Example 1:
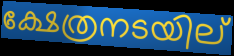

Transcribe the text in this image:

ക്ഷേത്രനടയില്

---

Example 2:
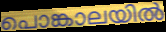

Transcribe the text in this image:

പൊങ്കാലയിൽ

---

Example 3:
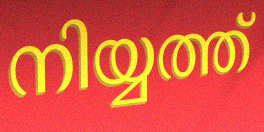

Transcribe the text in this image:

നിയ്യത്ത്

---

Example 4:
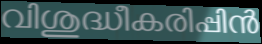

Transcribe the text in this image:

വിശുദ്ധീകരിപ്പിൻ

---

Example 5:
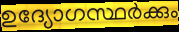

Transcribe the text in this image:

ഉദ്യോഗസ്ഥർക്കും